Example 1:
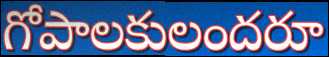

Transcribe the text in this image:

గోపాలకులందరూ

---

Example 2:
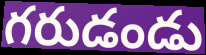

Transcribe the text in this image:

గరుడండు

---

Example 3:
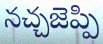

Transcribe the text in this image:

నచ్చజెప్పి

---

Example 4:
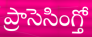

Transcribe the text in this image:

ప్రాసెసింగ్తో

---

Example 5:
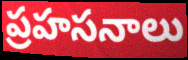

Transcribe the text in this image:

ప్రహసనాలు